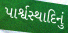
પાર્શ્વસ્થાદિનું